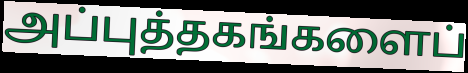
அப்புத்தகங்களைப்